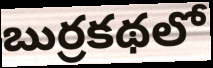
బుర్రకథలో